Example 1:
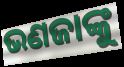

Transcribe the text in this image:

ଭଣଜାଙ୍କୁ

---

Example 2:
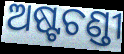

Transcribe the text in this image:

ଅଷ୍ଟଚଣ୍ଡୀ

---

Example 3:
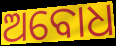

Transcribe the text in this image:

ଅବୋଧ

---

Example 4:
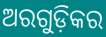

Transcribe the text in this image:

ଅରଗୁଡ଼ିକର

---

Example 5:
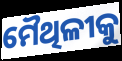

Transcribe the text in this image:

ମୈଥିଳୀକୁ